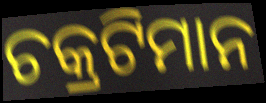
ଚକ୍ରଟିମାନ